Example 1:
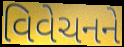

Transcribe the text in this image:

વિવેચનને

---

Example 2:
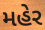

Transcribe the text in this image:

મહેર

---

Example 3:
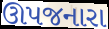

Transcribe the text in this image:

ઊપજનારા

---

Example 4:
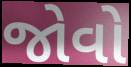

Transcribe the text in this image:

જોવો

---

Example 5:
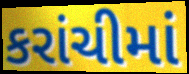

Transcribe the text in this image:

કરાંચીમાં